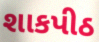
શાકપીઠ